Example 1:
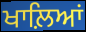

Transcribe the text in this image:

ਖਾਲ਼ਿਆਂ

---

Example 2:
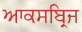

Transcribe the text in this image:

ਆਕਸਬ੍ਰਿਜ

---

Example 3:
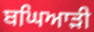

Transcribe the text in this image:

ਬਘਿਆੜੀ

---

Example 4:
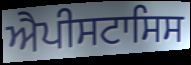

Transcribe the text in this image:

ਐਪੀਸਟਾਸਿਸ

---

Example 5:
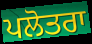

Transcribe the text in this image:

ਪਲੋਤਰਾ